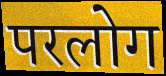
परलोग